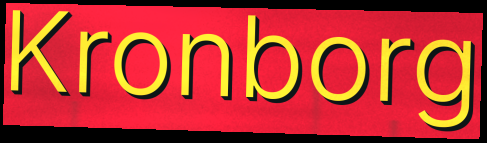
Kronborg